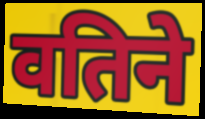
वतिने